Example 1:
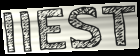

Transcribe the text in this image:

IIEST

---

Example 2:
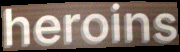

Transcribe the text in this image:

heroins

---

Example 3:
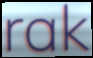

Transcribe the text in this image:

rak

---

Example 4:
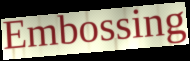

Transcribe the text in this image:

Embossing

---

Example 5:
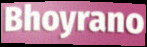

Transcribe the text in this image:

Bhoyrano